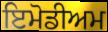
ਇਮੋਡੀਅਮ